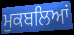
ਮੁਕਬਲਿਆਂ